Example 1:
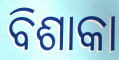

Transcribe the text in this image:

ବିଶାକା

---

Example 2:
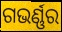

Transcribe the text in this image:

ଗଭର୍ଣ୍ଣର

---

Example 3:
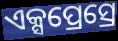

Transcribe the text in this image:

ଏକ୍ସପ୍ରେସ୍ରେ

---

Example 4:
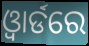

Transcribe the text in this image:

ଓ୍ବାର୍ଡରେ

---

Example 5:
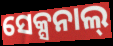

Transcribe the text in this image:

ସେକ୍ସନାଲ୍